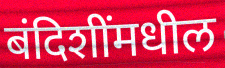
बंदिशींमधील